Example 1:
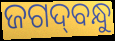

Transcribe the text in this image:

ଜଗଦ୍‌ବନ୍ଧୁ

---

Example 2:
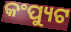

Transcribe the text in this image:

କଂପ୍ୟୁଟ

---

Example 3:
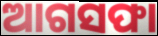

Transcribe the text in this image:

ଆଗସଫା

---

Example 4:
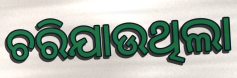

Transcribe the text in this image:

ଚରିଯାଉଥିଲା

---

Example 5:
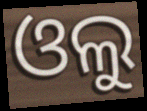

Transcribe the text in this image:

ଓଲୁ